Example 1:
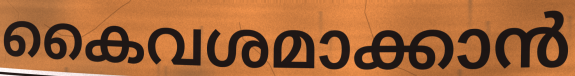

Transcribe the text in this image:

കൈവശമാക്കാൻ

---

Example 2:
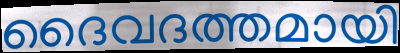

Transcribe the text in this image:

ദൈവദത്തമായി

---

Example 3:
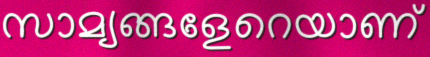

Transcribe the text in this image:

സാമ്യങ്ങളേറെയാണ്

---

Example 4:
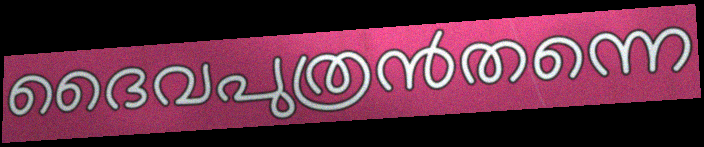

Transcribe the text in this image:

ദൈവപുത്രൻതന്നെ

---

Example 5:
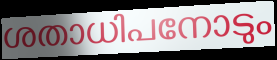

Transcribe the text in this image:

ശതാധിപനോടും